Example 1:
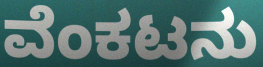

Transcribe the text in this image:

ವೆಂಕಟನು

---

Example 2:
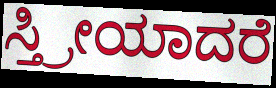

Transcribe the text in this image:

ಸ್ತ್ರೀಯಾದರೆ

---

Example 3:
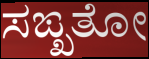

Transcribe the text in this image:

ಸಙ್ಖತೋ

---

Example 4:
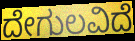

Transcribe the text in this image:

ದೇಗುಲವಿದೆ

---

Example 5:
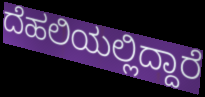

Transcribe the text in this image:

ದೆಹಲಿಯಲ್ಲಿದ್ದಾರೆ